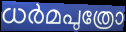
ധർമപുത്രോ